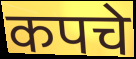
कपचे